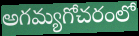
అగమ్యగోచరంలో